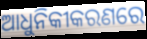
ଆଧୁନିକୀକରଣରେ